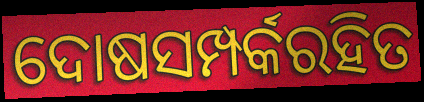
ଦୋଷସମ୍ପର୍କରହିତ